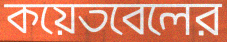
কয়েতবেলের